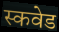
स्कवेड